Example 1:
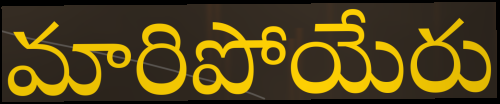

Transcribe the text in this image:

మారిపోయేరు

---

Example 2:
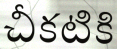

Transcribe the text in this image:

చీకటికి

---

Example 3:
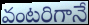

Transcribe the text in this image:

వంటరిగానే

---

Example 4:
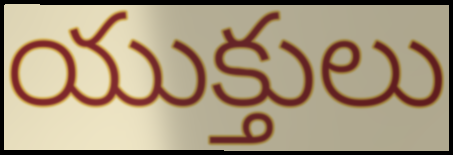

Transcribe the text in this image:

యుక్తులు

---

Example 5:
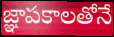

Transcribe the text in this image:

జ్ఞాపకాలతోనే